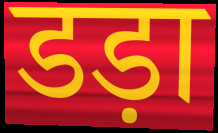
डड़ा